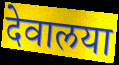
देवालया